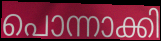
പൊന്നാക്കി